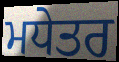
ਮਧੇਤਰ